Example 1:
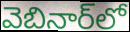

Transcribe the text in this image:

వెబినార్‌లో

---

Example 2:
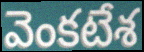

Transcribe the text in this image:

వెంకటేశ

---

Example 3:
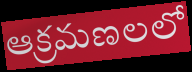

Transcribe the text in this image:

ఆక్రమణలలో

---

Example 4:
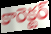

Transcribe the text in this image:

కారెక్టర్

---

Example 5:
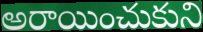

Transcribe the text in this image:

అరాయించుకుని